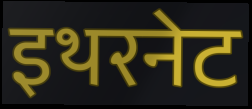
इथरनेट